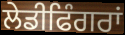
ਲੇਡੀਫਿੰਗਰਾਂ